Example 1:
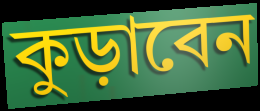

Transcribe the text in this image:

কুড়াবেন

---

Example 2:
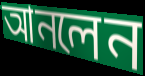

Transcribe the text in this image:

আনলেন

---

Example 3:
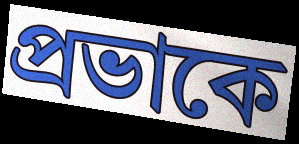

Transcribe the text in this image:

প্রভাকে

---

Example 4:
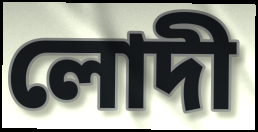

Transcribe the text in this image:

লোদী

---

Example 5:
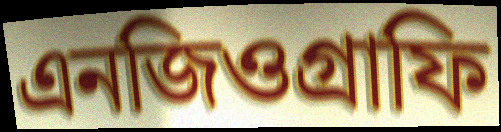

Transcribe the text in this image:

এনজিওগ্রাফি